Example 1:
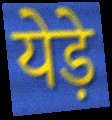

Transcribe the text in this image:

येड़े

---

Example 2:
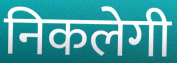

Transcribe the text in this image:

निकलेगी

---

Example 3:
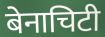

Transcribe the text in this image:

बेनाचिटी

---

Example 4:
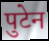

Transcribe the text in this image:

पुटेन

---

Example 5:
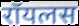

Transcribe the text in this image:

रॉयलस